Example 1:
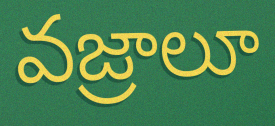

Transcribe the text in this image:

వజ్రాలూ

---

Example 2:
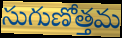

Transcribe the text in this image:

సుగుణోత్తమ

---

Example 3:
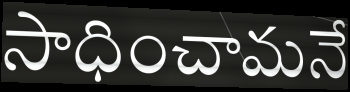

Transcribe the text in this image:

సాధించామనే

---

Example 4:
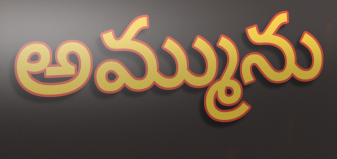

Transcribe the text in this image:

అమ్మును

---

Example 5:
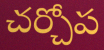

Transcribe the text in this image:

చర్చోప